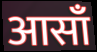
आसाँ